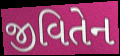
જીવિતેન